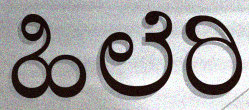
ಹಿಲೆರಿ